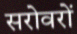
सरोवरों